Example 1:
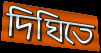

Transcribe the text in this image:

দিঘিতে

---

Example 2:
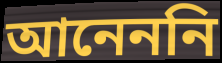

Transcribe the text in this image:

আনেননি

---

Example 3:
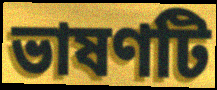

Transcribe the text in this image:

ভাষণটি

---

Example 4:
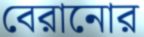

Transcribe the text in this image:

বেরানোর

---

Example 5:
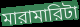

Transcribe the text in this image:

মারামারিটা